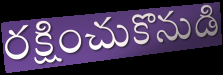
రక్షించుకొనుడి